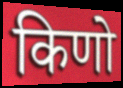
किणो